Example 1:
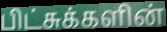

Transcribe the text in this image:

பிட்சுக்களின்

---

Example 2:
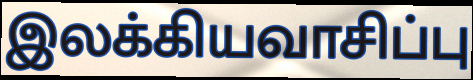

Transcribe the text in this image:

இலக்கியவாசிப்பு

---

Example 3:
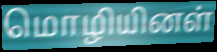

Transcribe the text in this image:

மொழியினள்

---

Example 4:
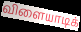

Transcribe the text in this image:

விளையாடிக்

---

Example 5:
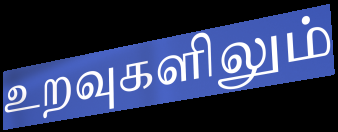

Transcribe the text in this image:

உறவுகளிலும்